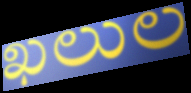
ఖలుల